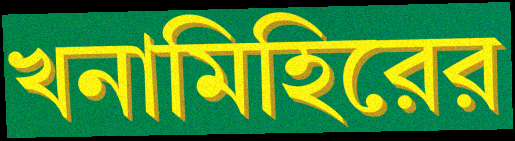
খনামিহিরের